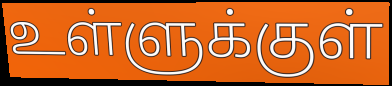
உள்ளுக்குள்